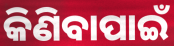
କିଣିବାପାଇଁ